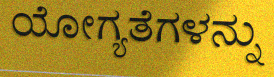
ಯೋಗ್ಯತೆಗಳನ್ನು